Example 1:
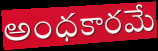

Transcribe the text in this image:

అంధకారమే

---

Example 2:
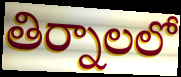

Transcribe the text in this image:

తిర్నాలలో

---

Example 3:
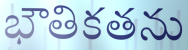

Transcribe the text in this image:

భౌతికతను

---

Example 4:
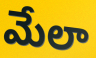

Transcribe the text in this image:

మేలా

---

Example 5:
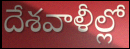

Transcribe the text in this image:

దేశవాళీల్లో